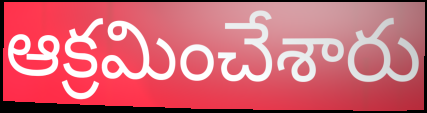
ఆక్రమించేశారు